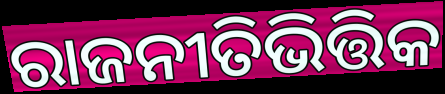
ରାଜନୀତିଭିତ୍ତିକ